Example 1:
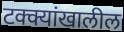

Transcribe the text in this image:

टक्क्यांखालील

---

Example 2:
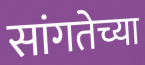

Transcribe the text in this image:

सांगतेच्या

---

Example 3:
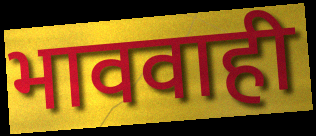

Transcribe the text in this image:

भाववाही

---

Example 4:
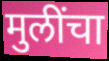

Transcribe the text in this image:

मुलींचा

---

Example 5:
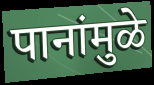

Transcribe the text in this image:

पानांमुळे